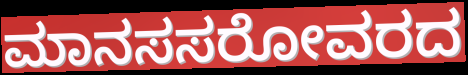
ಮಾನಸಸರೋವರದ